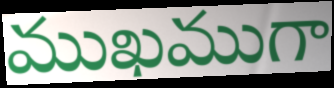
ముఖముగా